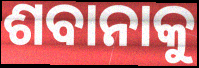
ଶବାନାକୁ